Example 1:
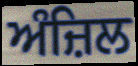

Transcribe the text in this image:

ਅੰਜ਼ਿਲ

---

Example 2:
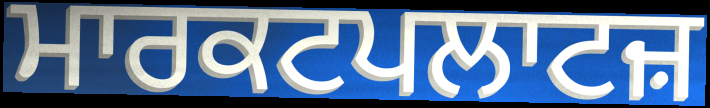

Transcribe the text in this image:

ਮਾਰਕਟਪਲਾਟਜ਼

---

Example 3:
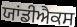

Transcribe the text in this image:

ਯਾਂਡੀਐਕਸ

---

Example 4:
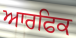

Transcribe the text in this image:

ਆਰਫਿਕ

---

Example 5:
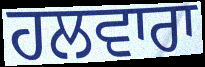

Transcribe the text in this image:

ਹਲਵਾਰਾ